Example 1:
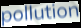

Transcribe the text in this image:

pollution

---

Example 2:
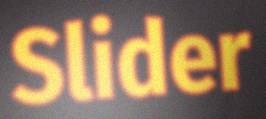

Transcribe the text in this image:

Slider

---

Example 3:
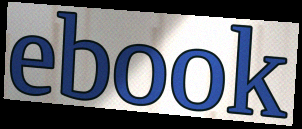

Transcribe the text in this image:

ebook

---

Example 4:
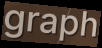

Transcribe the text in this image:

graph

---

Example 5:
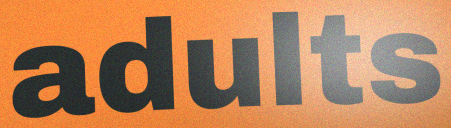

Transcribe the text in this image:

adults